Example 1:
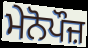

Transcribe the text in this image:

ਮੇਨੋਪੌਜ਼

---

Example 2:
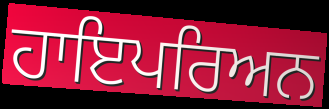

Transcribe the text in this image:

ਹਾਇਪਰਿਅਨ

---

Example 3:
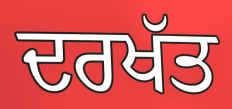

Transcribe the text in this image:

ਦਰਖੱਤ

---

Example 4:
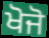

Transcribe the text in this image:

ਖੋਜੋ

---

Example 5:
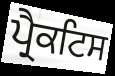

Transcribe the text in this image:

ਪ੍ਰੈਕਟਿਸ